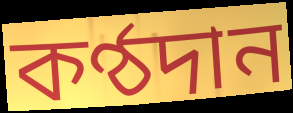
কণ্ঠদান